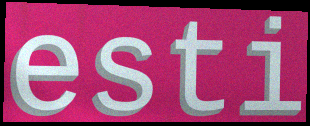
esti